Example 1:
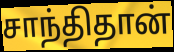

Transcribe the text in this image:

சாந்திதான்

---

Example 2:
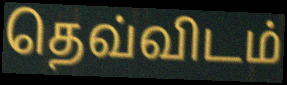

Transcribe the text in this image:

தெவ்விடம்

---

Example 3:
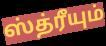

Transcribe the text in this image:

ஸ்த்ரீயும்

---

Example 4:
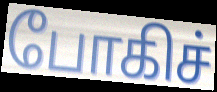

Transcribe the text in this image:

போகிச்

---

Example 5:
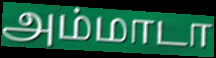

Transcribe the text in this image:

அம்மாடா